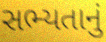
સભ્યતાનું